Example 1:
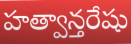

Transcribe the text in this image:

హత్వాన్తరేషు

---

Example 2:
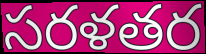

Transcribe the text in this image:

సరళతర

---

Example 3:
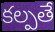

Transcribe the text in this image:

కల్పతే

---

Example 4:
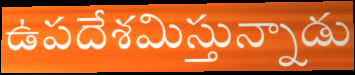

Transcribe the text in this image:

ఉపదేశమిస్తున్నాడు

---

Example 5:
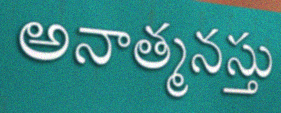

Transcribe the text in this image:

అనాత్మనస్తు